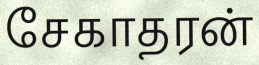
சேகாதரன்